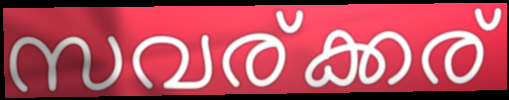
സവര്ക്കര്